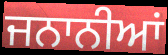
ਜਨਾਨੀਆਂ